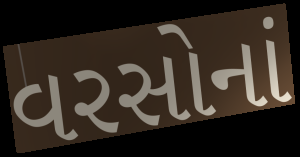
વરસોનાં